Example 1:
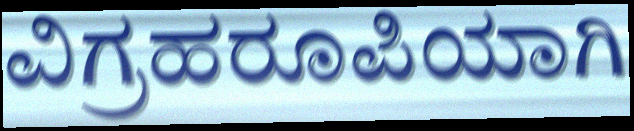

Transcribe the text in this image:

ವಿಗ್ರಹರೂಪಿಯಾಗಿ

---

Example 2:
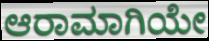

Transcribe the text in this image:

ಆರಾಮಾಗಿಯೇ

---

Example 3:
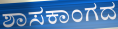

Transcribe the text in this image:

ಶಾಸಕಾಂಗದ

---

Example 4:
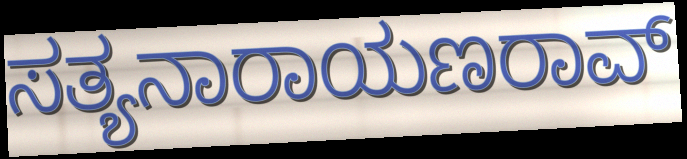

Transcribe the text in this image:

ಸತ್ಯನಾರಾಯಣರಾವ್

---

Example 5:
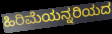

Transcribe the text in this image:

ಹಿರಿಮೆಯನ್ನರಿಯದ